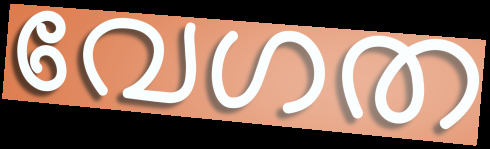
വേഗത